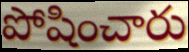
పోషించారు